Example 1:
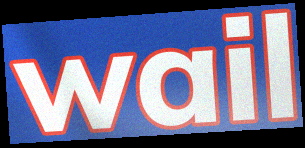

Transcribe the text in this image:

wail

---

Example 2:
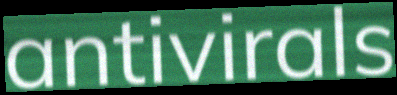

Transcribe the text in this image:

antivirals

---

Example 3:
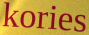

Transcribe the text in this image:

kories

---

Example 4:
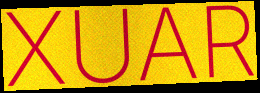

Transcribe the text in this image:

XUAR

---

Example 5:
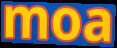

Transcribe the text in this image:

moa